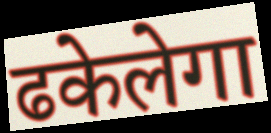
ढकेलेगा